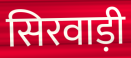
सिरवाड़ी